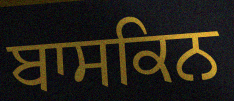
ਬਾਸਕਿਨ